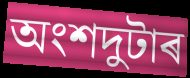
অংশদুটাৰ